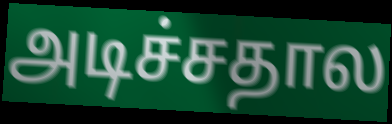
அடிச்சதால